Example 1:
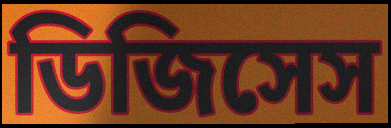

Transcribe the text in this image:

ডিজিসেস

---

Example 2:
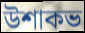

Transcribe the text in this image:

উশাকভ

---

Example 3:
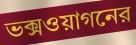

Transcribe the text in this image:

ভক্সওয়াগনের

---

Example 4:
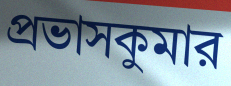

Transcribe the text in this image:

প্রভাসকুমার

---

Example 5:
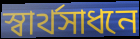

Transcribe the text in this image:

স্বার্থসাধনে